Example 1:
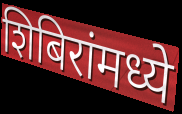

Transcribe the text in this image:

शिबिरांमध्ये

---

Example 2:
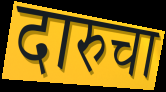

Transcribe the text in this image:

दारुचा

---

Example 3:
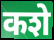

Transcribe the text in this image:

कशे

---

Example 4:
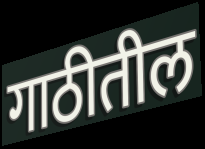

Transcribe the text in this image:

गाठीतील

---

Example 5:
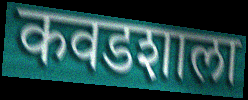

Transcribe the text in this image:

कवडशाला